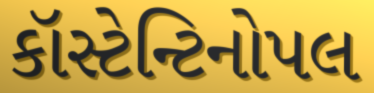
કૉસ્ટેન્ટિનોપલ